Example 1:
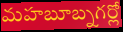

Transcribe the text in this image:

మహబూబ్నగర్లో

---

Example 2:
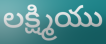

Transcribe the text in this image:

లక్ష్మియు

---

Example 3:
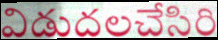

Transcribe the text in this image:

విడుదలచేసిరి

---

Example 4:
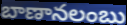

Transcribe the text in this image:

బాణానలంబు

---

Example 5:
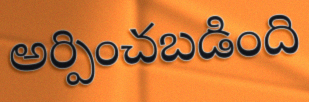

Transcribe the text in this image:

అర్పించబడింది